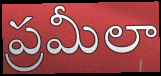
ప్రమీలా